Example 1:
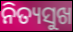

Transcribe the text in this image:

ନିତ୍ୟସୁଖ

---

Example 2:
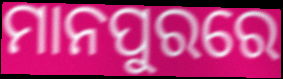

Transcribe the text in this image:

ମାନପୁରରେ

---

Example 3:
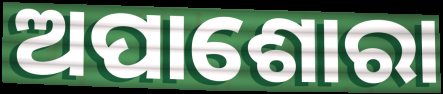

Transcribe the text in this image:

ଅପାଶୋରା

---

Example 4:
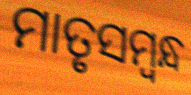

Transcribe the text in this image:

ମାତୃସମ୍ବନ୍ଧ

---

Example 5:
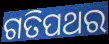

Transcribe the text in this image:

ଗତିପଥର